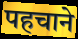
पहचाने